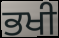
ਭਖੀ